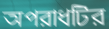
অপরাধটির